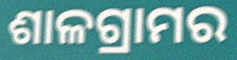
ଶାଳଗ୍ରାମର